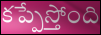
కప్పేస్తోంది